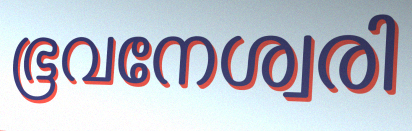
ഭൂവനേശ്വരി